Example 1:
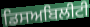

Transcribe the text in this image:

ਡਿਸਅਬਿਲੀਟੀ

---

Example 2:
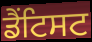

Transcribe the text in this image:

ਡੈਂਟਿਸਟ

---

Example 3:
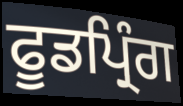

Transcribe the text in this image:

ਫੂਡਪ੍ਰਿੰਗ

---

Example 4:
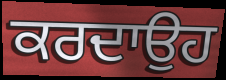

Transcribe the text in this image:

ਕਰਦਾਉਹ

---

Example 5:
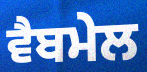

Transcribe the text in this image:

ਵੈਬਮੇਲ